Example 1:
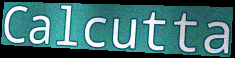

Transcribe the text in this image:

Calcutta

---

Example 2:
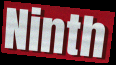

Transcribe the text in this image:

Ninth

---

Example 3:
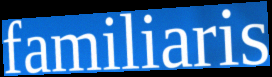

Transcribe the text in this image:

familiaris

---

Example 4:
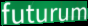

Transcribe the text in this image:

futurum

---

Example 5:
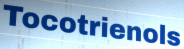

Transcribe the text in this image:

Tocotrienols